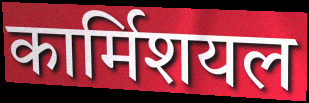
कार्मिशयल